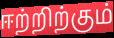
ஈற்றிற்கும்